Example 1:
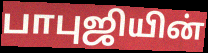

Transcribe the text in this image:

பாபுஜியின்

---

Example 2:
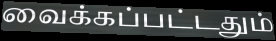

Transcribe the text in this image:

வைக்கப்பட்டதும்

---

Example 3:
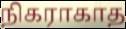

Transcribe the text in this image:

நிகராகாத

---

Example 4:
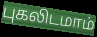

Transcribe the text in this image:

புகலிடமாம்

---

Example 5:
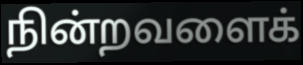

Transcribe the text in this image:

நின்றவளைக்